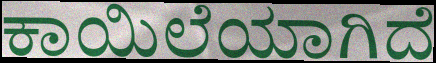
ಕಾಯಿಲೆಯಾಗಿದೆ